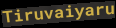
Tiruvaiyaru